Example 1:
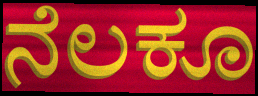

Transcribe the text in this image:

ನೆಲಕೂ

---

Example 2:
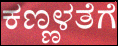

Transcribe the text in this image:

ಕಣ್ಣಳತೆಗೆ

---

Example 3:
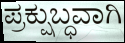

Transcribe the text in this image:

ಪ್ರಕ್ಷುಬ್ಧವಾಗಿ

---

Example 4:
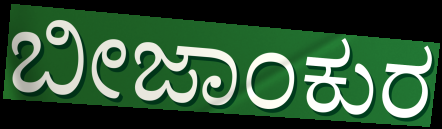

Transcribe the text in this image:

ಬೀಜಾಂಕುರ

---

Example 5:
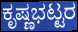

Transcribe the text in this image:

ಕೃಷ್ಣಭಟ್ಟರ